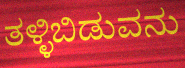
ತಳ್ಳಿಬಿಡುವನು